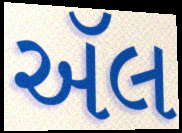
ઍલ